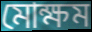
মোক্ষম